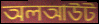
অলআউট